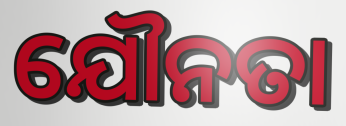
ଯୌନତା